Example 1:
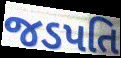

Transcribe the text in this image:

જડપતિ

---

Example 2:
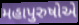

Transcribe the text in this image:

મહાપુરુષોએ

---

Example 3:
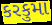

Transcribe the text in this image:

કરકુમા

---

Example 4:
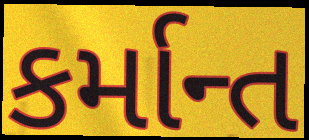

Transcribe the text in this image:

કર્માન્ત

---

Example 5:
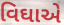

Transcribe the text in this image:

વિઘાએ